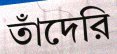
তাঁদেরি